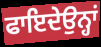
ਫਾਇਦੇਉਨ੍ਹਾਂ